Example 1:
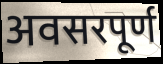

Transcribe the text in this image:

अवसरपूर्ण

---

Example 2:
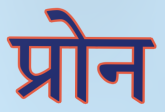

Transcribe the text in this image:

प्रोन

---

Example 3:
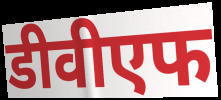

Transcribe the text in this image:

डीवीएफ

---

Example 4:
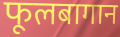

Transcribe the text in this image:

फूलबागान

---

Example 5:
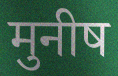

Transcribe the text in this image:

मुनीष